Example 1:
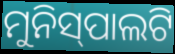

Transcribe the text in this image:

ମୁନିସ୍‍ପାଲଟି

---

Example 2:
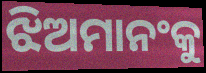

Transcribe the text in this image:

ଝିଅମାନଂକୁ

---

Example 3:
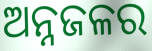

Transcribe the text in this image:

ଅନ୍ନଜଳର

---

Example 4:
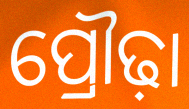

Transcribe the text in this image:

ପ୍ରୌଢ଼ା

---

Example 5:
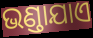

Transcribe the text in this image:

ଭଣ୍ଡାଯାଏ